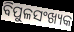
ବିପୁଳସଂଖ୍ୟକ